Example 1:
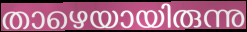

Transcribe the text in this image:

താഴെയായിരുന്നു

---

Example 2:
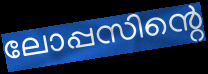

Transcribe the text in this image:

ലോപ്പസിന്റെ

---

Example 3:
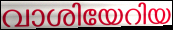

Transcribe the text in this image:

വാശിയേറിയ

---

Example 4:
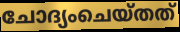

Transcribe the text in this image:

ചോദ്യംചെയ്തത്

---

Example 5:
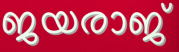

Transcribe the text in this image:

ജയരാജ്